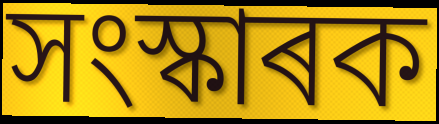
সংস্কাৰক